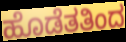
ಹೊಡೆತತಿಂದ